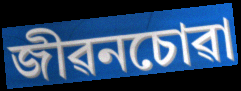
জীৱনচোৱা